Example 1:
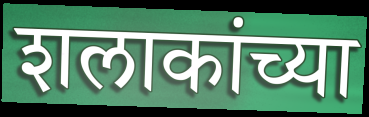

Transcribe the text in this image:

शलाकांच्या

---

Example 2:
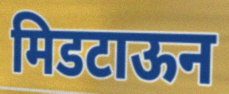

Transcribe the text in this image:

मिडटाऊन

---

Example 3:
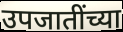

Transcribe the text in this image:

उपजातींच्या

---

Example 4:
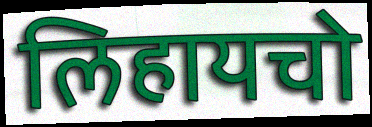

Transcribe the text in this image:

लिहायचो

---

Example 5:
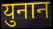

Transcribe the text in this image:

युनान